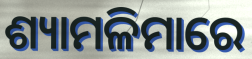
ଶ୍ୟାମଳିମାରେ